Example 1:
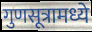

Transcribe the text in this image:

गुणसूत्रामध्ये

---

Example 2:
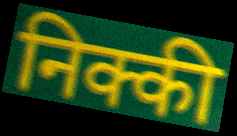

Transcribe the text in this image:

निक्की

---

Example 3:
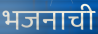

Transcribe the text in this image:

भजनाची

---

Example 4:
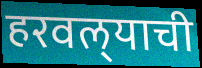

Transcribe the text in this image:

हरवल्याची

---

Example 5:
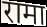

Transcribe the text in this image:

रामा